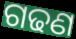
ଗଢଣ